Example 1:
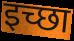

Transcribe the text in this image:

इच्‍छा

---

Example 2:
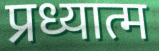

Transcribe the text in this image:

प्रध्यात्म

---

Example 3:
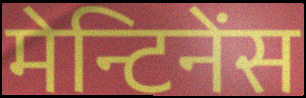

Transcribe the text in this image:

मेन्टिनेंस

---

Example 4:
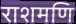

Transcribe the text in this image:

राशमणि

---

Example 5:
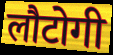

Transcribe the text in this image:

लौटोगी